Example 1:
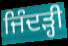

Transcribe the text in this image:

ਜਿੰਦੜ੍ਹੀ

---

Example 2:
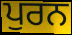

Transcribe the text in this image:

ਪੁਰਨ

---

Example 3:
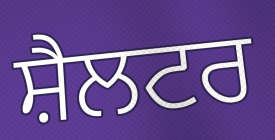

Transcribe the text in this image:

ਸ਼ੈਲਟਰ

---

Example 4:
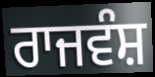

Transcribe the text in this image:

ਰਾਜਵੰਸ਼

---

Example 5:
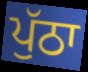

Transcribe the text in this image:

ਪੁੱਠਾ